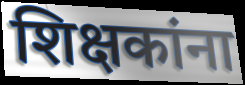
शिक्षकांना